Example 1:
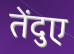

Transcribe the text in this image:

तेंदुए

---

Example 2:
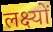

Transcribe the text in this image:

लक्ष्यों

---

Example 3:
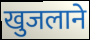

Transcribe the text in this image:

खुजलाने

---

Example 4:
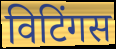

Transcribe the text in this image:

विटिंगस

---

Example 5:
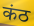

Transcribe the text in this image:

कंठ